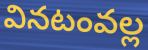
వినటంవల్ల